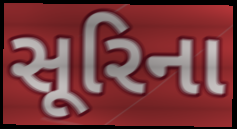
સૂરિના